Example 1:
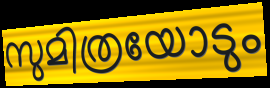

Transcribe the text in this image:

സുമിത്രയോടും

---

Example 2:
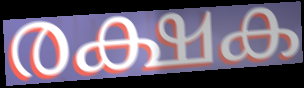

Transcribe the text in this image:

രക്ഷക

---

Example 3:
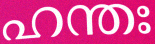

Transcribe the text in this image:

ഹന്തഃ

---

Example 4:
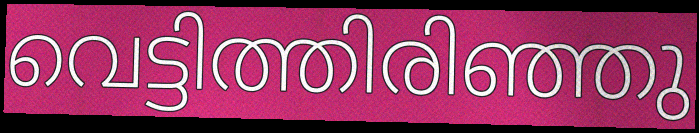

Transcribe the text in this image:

വെട്ടിത്തിരിഞ്ഞു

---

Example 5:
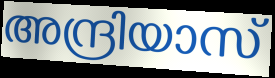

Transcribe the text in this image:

അന്ദ്രിയാസ്